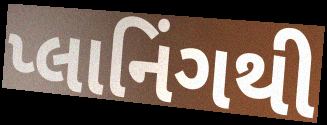
પ્લાનિંગથી